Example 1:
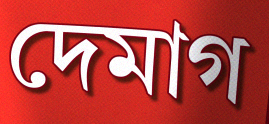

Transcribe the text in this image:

দেমাগ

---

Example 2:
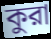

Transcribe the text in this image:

কুরা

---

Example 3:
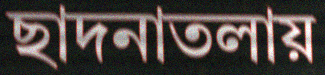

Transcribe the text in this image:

ছাদনাতলায়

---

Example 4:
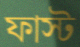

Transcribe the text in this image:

ফাস্ট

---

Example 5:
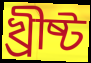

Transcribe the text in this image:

খ্রীষ্ট